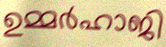
ഉമ്മർഹാജി